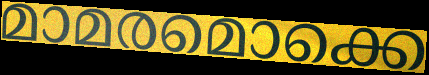
മാമരമൊക്കെ